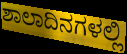
ಶಾಲಾದಿನಗಳಲ್ಲಿ